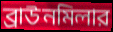
ব্রাউনমিলার